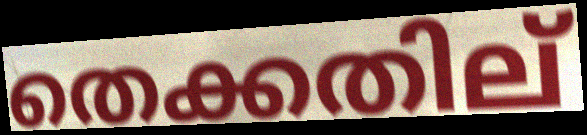
തെക്കതില്